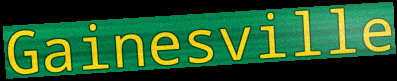
Gainesville